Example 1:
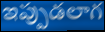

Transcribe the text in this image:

ఇప్పుడలాగ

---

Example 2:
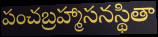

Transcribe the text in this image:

పంచబ్రహ్మాసనస్థితా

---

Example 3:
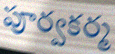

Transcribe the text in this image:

పూర్వకర్మ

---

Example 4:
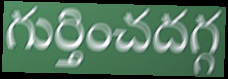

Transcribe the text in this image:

గుర్తించదగ్గ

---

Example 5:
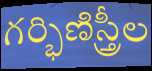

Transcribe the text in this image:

గర్భిణిస్త్రీల